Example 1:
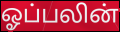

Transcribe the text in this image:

ஓப்பலின்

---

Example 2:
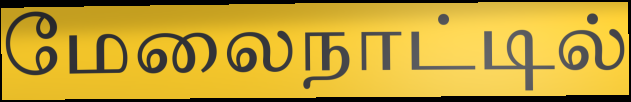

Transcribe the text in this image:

மேலைநாட்டில்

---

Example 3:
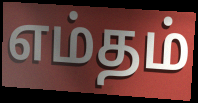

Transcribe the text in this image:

எம்தம்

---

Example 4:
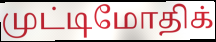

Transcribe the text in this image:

முட்டிமோதிக்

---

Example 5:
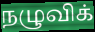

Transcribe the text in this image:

நழுவிக்